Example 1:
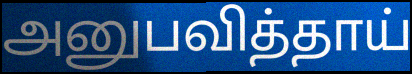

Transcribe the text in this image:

அனுபவித்தாய்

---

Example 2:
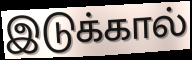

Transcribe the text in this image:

இடுக்கால்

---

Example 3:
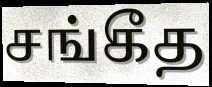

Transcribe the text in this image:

சங்கீத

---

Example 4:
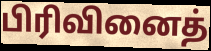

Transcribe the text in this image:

பிரிவினைத்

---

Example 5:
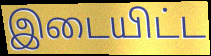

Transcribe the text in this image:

இடையிட்ட